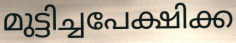
മുട്ടിച്ചപേക്ഷിക്ക